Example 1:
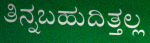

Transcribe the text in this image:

ತಿನ್ನಬಹುದಿತ್ತಲ್ಲ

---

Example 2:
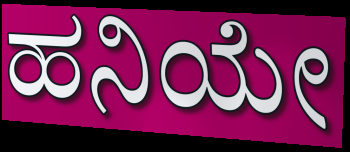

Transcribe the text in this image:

ಹನಿಯೇ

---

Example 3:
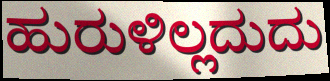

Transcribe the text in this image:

ಹುರುಳಿಲ್ಲದುದು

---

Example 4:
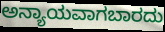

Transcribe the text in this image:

ಅನ್ಯಾಯವಾಗಬಾರದು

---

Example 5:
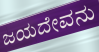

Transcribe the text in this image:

ಜಯದೇವನು